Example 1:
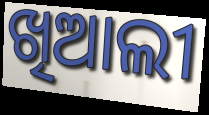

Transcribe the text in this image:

ଖିଆଲୀ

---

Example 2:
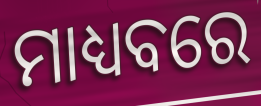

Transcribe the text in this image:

ମାଧ୍ୟବରେ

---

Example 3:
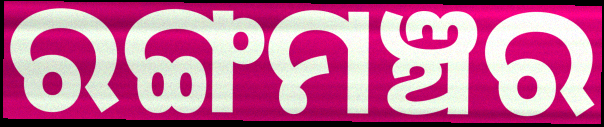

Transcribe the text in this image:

ରଙ୍ଗମଞ୍ଚର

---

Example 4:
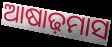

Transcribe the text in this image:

ଆଷାଢ଼ମାସ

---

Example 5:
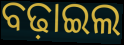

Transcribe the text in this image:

ବଢ଼ାଇଲ